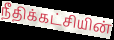
நீதிக்கட்சியின்